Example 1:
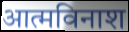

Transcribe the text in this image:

आत्मविनाश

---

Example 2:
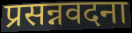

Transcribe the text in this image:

प्रसन्नवदना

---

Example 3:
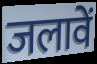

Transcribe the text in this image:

जलावें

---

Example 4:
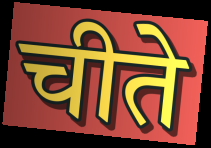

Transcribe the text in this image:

चीते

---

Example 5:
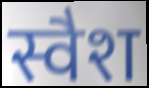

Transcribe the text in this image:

स्वैश